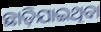
ଛାଡ଼ିଯାଇଥିବା